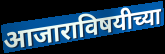
आजाराविषयीच्या